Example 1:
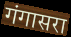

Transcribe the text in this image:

गंगासरा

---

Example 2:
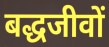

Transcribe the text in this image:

बद्धजीवों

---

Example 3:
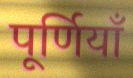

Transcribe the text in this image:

पूर्णियाँ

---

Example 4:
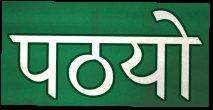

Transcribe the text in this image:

पठयो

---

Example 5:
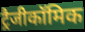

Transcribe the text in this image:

ट्रैजीकॉमिक